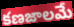
కణజాలమే